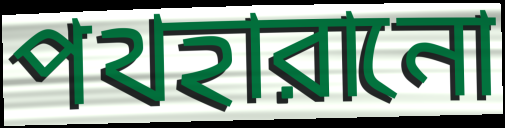
পথহারানো